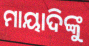
ମାୟାଦିଙ୍କୁ